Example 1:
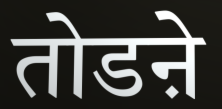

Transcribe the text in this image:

तोडऩे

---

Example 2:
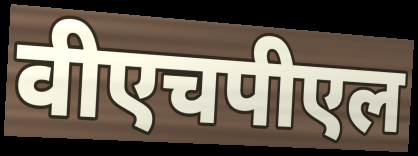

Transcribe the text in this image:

वीएचपीएल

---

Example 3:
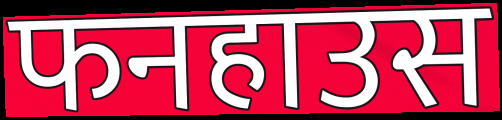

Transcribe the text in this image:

फनहाउस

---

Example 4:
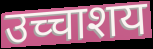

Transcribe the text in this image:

उच्चाशय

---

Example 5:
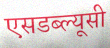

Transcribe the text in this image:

एसडब्ल्यूसी